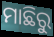
ମାଛିରୁ